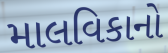
માલવિકાનો